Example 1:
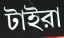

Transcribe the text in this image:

টাইরা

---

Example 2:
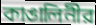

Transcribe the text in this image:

কাঙালিনীর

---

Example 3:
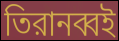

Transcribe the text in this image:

তিরানব্বই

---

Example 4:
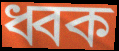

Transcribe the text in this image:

ধ্বক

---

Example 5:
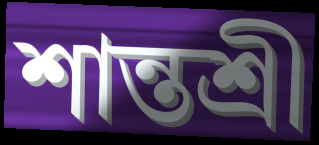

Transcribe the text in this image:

শান্তশ্রী